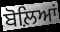
ਬੋਲ਼ਿਆਂ